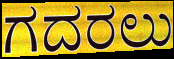
ಗದರಲು